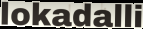
lokadalli